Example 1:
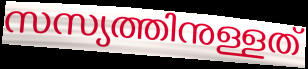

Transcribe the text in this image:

സസ്യത്തിനുള്ളത്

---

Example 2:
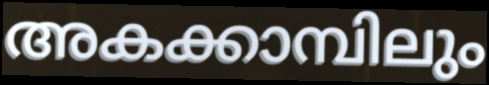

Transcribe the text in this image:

അകക്കാമ്പിലും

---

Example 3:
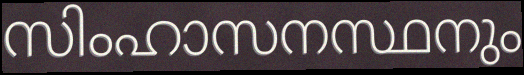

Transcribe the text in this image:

സിംഹാസനസ്ഥനും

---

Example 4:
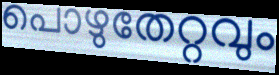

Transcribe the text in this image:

പൊഴുതേറ്റവും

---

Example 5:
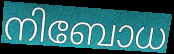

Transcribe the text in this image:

നിബോധ